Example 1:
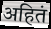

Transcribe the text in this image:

अहितं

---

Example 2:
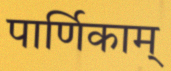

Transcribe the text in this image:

पार्णिकाम्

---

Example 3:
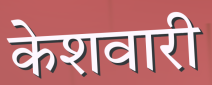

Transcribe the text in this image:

केशवारी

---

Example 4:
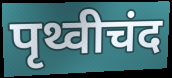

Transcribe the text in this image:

पृथ्वीचंद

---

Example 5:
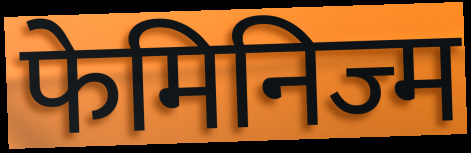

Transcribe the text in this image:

फेमिनिज्‍म